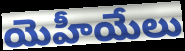
యెహీయేలు